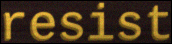
resist